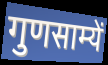
गुणसाम्यें